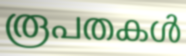
രൂപതകൾ